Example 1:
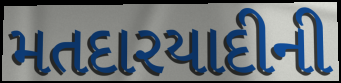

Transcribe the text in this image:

મતદારયાદીની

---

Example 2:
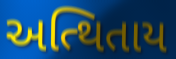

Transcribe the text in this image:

અત્થિતાય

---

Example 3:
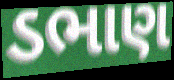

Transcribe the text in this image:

ડભાણ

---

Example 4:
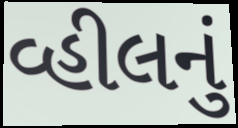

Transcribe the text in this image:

વ્હીલનું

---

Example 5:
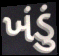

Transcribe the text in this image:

ખંડું